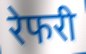
रेफरी